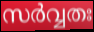
സർവ്വതഃ